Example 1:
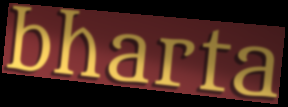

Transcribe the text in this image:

bharta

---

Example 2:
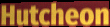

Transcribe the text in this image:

Hutcheon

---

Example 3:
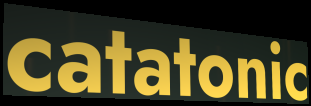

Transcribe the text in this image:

catatonic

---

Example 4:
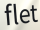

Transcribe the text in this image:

flet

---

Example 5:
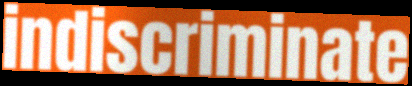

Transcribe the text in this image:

indiscriminate